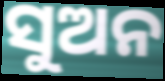
ସୁଅନ